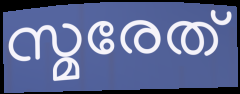
സ്മരേത്